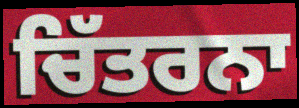
ਚਿੱਤਰਨਾ